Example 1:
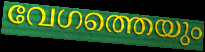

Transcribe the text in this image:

വേഗത്തെയും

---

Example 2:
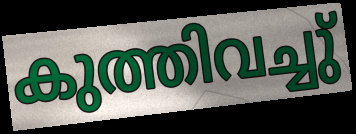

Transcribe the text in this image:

കുത്തിവച്ചു്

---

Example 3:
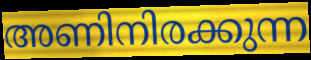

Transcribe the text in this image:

അണിനിരക്കുന്ന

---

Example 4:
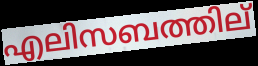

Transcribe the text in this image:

എലിസബത്തില്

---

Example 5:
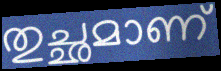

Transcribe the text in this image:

തുച്ഛമാണ്